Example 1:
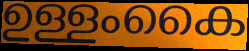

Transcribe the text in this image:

ഉള്ളംകൈ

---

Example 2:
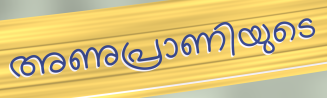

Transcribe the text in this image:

അണുപ്രാണിയുടെ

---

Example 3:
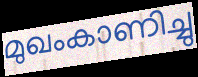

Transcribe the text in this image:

മുഖംകാണിച്ചു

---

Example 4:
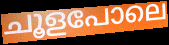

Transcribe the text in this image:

ചൂളപോലെ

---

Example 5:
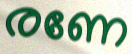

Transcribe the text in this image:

രണേ